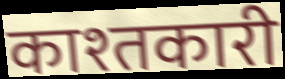
काश्तकारी